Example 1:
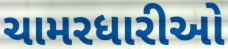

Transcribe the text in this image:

ચામરધારીઓ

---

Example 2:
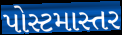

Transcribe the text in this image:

પોસ્ટમાસ્તર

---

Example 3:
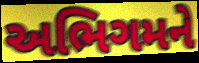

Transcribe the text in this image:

અભિગમને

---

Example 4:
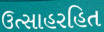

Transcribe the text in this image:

ઉત્સાહરહિત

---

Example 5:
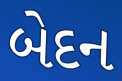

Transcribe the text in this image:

બેદન